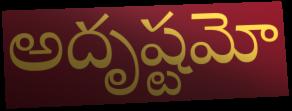
అదృష్టమో